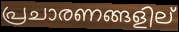
പ്രചാരണങ്ങളില്